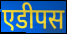
एडीपस